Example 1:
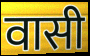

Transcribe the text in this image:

वासी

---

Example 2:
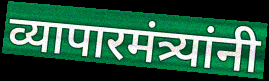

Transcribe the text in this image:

व्यापारमंत्र्यांनी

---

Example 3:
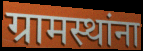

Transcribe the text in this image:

ग्रामस्थांना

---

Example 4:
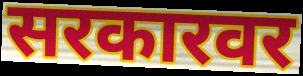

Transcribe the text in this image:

सरकारवर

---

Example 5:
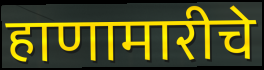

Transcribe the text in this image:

हाणामारीचे